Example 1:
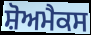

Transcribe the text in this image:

ਸ਼ੋਅਮੈਕਸ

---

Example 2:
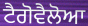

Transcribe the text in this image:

ਟੈਗੋਵੈਲੋਆ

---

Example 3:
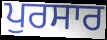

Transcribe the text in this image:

ਪੁਰਸਾਰ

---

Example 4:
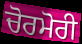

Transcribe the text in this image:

ਚੋਰਮੋਰੀ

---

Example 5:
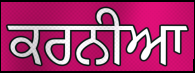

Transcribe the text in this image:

ਕਰਨੀਆ